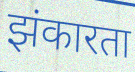
झंकारता